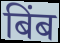
बिंब